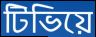
টিভিয়ে